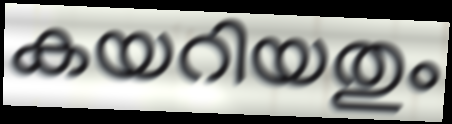
കയറിയതും